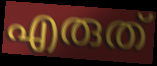
എരുത്